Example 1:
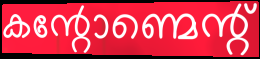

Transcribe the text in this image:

കന്റോണ്മെന്റ്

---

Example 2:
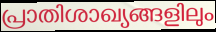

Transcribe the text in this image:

പ്രാതിശാഖ്യങ്ങളിലും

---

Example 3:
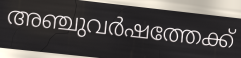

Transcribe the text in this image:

അഞ്ചുവർഷത്തേക്ക്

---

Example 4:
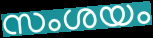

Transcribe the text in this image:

സംശയം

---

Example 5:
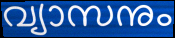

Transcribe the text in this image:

വ്യാസനും